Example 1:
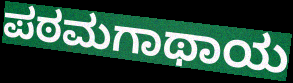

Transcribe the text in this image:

ಪಠಮಗಾಥಾಯ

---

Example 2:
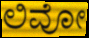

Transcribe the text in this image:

ಲಿವೋ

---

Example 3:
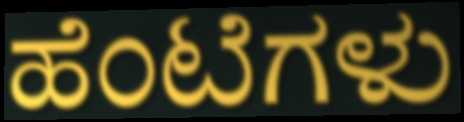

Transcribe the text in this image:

ಹೆಂಟೆಗಳು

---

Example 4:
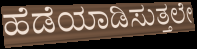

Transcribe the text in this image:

ಹೆಡೆಯಾಡಿಸುತ್ತಲೇ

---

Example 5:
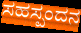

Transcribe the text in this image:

ಸಹಸ್ಪಂದನ